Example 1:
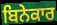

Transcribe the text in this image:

ਬਿਨੇਕਾਰ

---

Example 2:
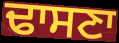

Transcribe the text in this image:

ਢਾਸਣਾ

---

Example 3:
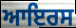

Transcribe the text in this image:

ਆਇਰਸ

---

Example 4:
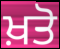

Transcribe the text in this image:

ਖ਼ਤੋ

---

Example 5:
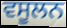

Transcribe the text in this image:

ਵਸੂਲਨ